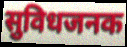
सुविधजनक